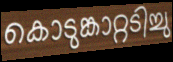
കൊടുങ്കാറ്റടിച്ചു